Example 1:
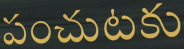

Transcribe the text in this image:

పంచుటకు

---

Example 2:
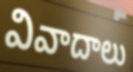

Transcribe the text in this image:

వివాదాలు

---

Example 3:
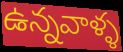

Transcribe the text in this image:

ఉన్నవాళ్ళ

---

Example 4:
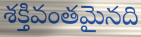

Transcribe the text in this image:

శక్తివంతమైనది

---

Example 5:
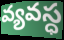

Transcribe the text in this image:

వ్యవస్ధ